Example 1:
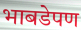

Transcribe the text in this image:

भाबडेपण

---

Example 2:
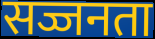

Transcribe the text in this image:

सज्जनता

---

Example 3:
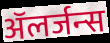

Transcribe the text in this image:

ॲलर्जन्स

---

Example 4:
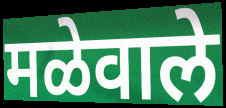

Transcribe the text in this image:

मळेवाले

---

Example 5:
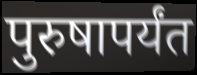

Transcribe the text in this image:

पुरुषापर्यंत